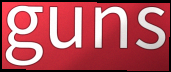
guns